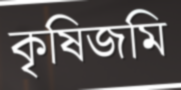
কৃষিজমি